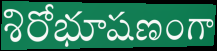
శిరోభూషణంగా